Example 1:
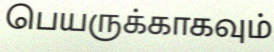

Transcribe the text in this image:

பெயருக்காகவும்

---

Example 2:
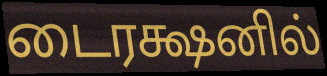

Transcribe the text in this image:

டைரக்ஷனில்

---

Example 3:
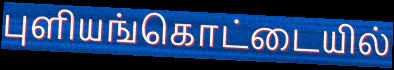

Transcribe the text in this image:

புளியங்கொட்டையில்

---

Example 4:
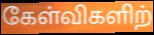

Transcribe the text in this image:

கேள்விகளிற்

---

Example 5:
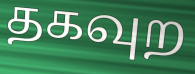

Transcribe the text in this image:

தகவுற